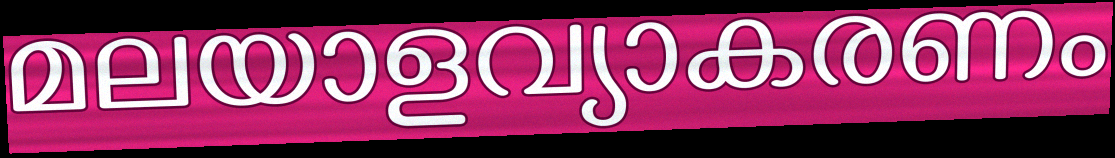
മലയാളവ്യാകരണം